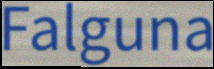
Falguna